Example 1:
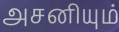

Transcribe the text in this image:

அசனியும்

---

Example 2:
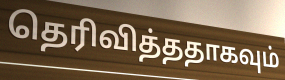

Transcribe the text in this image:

தெரிவித்ததாகவும்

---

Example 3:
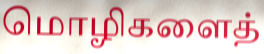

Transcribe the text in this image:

மொழிகளைத்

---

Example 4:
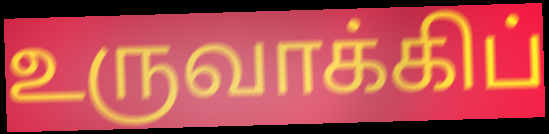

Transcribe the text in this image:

உருவாக்கிப்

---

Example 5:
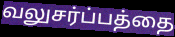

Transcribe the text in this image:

வலுசர்ப்பத்தை